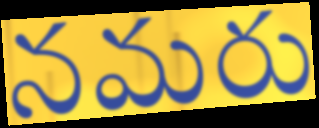
నమరు